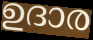
ഉദാര